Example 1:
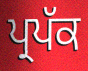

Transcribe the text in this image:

ਪ੍ਰਪੱਕ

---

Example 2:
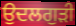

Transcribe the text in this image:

ਉਦਲਗੁੜੀ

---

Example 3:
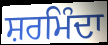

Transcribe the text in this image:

ਸ਼ਰਮਿੰਦਾ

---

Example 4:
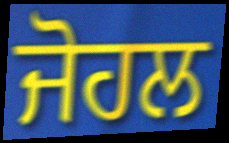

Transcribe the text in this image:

ਜੋਹਲ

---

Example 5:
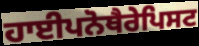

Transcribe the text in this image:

ਹਾਈਪਨੋਥੈਰੇਪਿਸਟ